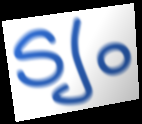
ട്യം